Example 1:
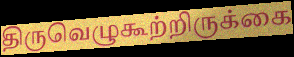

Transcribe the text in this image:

திருவெழுகூற்றிருக்கை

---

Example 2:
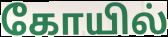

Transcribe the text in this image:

கோயில்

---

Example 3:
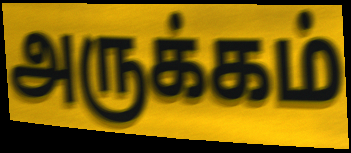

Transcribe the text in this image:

அருக்கம்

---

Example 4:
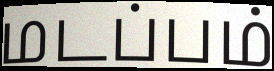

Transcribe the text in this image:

மடப்பம்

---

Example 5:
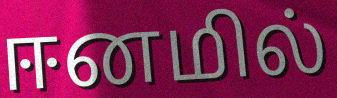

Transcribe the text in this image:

ஈனமில்